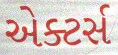
એક્ટર્સ